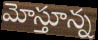
మోస్తూన్న